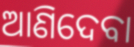
ଆଣିଦେବା